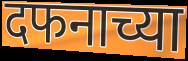
दफनाच्या